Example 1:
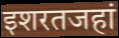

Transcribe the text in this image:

इशरतजहां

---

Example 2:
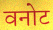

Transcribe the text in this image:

वनोट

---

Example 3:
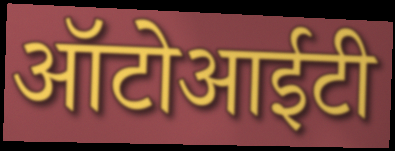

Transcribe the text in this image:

ऑटोआईटी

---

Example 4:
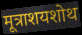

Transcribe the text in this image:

मूत्राशयशोथ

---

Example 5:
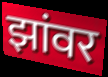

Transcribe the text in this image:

झांवर